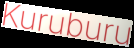
Kuruburu